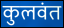
कुलवंत